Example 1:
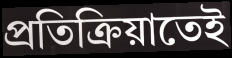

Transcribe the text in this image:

প্রতিক্রিয়াতেই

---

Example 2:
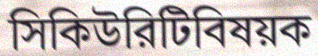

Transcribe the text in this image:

সিকিউরিটিবিষয়ক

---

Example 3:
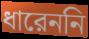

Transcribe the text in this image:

ধারেননি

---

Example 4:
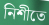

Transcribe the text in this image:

নিশীতে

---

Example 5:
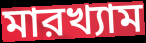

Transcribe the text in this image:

মারখ্যাম